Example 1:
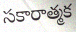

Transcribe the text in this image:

సకారాత్మక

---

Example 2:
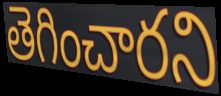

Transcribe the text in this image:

తెగించారని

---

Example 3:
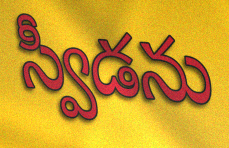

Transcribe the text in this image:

స్వీడను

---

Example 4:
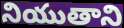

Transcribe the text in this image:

నియుతాని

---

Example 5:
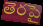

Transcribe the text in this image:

తెరపై